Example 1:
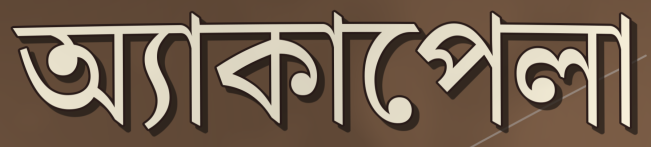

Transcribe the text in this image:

অ্যাকাপেলা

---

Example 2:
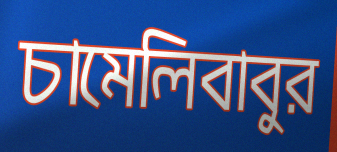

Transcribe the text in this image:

চামেলিবাবুর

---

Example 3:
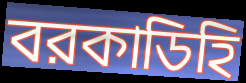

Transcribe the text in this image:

বরকাডিহি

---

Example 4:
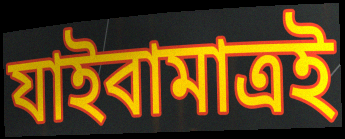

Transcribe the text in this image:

যাইবামাত্রই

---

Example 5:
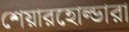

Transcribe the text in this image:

শেয়ারহোল্ডারা